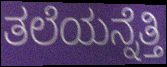
ತಲೆಯನ್ನೆತ್ತಿ